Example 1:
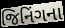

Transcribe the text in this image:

જિનિંગના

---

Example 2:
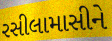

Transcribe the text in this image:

રસીલામાસીને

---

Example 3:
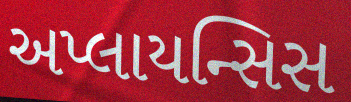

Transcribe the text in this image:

અપ્લાયન્સિસ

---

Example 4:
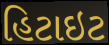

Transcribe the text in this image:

હિટાઇટ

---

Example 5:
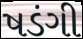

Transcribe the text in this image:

ષડંગી